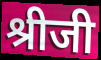
श्रीजी